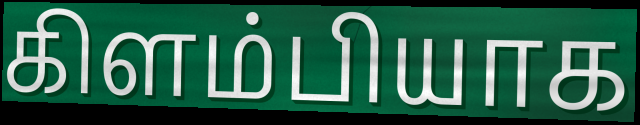
கிளம்பியாக